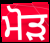
ਮੋਡ਼